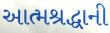
આત્મશ્રદ્ધાની